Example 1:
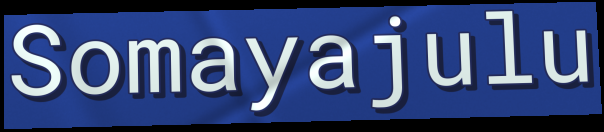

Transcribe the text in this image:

Somayajulu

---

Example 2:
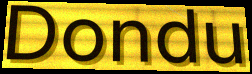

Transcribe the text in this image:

Dondu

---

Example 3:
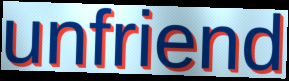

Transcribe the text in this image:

unfriend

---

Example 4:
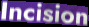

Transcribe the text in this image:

Incision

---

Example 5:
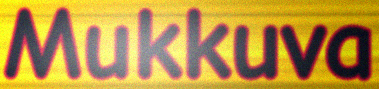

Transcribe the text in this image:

Mukkuva